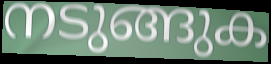
നടുങ്ങുക